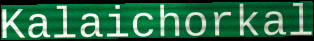
Kalaichorkal